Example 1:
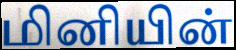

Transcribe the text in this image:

மினியின்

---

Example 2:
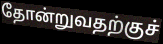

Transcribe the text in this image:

தோன்றுவதற்குச்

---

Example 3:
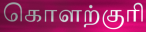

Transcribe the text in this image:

கொளற்குரி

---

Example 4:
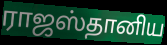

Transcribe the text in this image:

ராஜஸ்தானிய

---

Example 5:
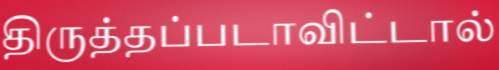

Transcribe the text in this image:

திருத்தப்படாவிட்டால்